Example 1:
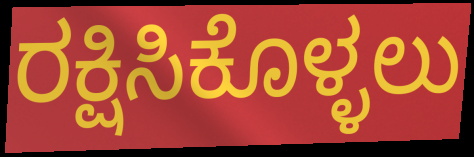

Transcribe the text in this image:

ರಕ್ಷಿಸಿಕೊಳ್ಳಲು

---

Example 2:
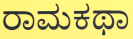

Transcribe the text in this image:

ರಾಮಕಥಾ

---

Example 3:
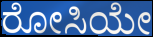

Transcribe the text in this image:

ರೋಸಿಯೇ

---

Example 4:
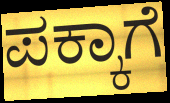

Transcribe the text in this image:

ಪಕ್ಕಾಗೆ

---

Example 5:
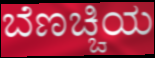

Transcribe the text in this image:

ಬೆಣಚ್ಚಿಯ